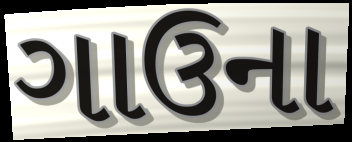
ગાઉના